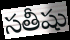
సతీషు